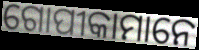
ଗୋପୀକାମାନେ